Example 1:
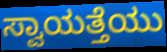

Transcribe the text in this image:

ಸ್ವಾಯತ್ತೆಯು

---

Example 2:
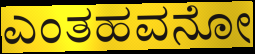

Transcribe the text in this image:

ಎಂತಹವನೋ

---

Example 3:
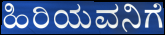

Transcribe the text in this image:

ಹಿರಿಯವನಿಗೆ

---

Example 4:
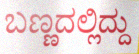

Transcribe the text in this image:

ಬಣ್ಣದಲ್ಲಿದ್ದು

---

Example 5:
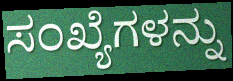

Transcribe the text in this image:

ಸಂಖ್ಯೆಗಳನ್ನು